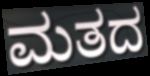
ಮತದ